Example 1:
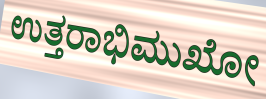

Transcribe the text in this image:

ಉತ್ತರಾಭಿಮುಖೋ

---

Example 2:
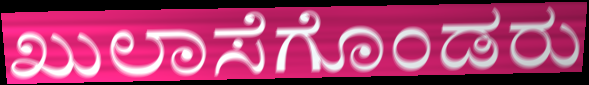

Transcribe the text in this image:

ಖುಲಾಸೆಗೊಂಡರು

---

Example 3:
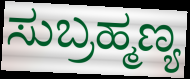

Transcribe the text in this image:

ಸುಬ್ರಹ್ಮಣ್ಯ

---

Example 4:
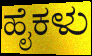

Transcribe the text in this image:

ಹೈಕಳು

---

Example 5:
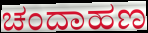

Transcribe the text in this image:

ಚಂದಾಹಣ